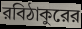
রবিঠাকুরের